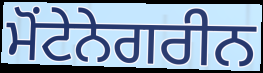
ਮੋਂਟੇਨੇਗਰੀਨ